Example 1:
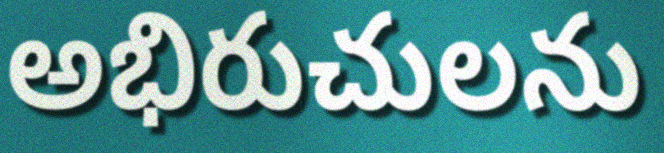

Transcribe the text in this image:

అభిరుచులను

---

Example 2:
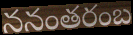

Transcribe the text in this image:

ననంతరంబ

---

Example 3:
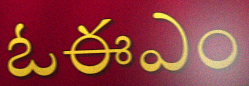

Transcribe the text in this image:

ఓఈఎం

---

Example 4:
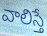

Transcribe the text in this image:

వాలిస్తే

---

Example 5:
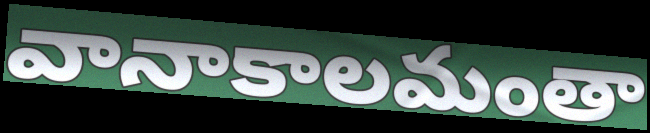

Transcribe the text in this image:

వానాకాలమంతా